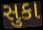
સુકા